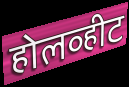
होलव्हीट